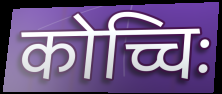
कोच्चिः